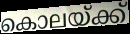
കൊലയ്ക്ക്